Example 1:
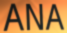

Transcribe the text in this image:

ANA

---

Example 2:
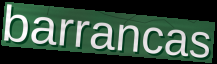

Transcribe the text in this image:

barrancas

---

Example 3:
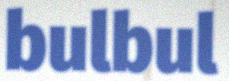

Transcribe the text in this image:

bulbul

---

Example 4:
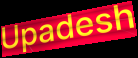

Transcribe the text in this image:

Upadesh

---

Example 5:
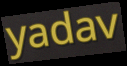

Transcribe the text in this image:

yadav